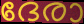
ദേരാ